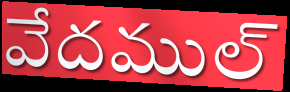
వేదముల్